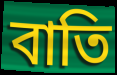
বাতি